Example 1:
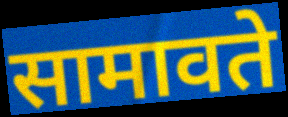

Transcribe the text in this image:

सामावते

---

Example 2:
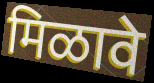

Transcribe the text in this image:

मिळावे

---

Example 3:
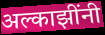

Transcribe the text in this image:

अल्काझींनी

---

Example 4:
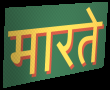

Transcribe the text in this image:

मारते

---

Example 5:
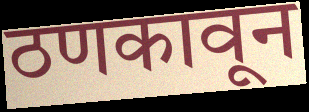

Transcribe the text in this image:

ठणकावून